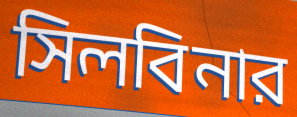
সিলবিনার